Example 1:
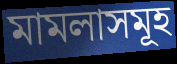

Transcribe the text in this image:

মামলাসমূহ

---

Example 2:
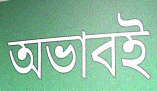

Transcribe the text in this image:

অভাবই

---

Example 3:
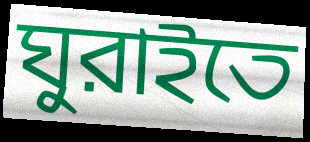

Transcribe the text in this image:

ঘুরাইতে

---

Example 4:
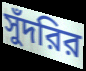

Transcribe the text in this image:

সুঁদরির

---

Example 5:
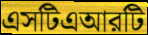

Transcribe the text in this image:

এসটিএআরটি